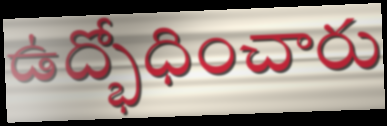
ఉద్భోధించారు